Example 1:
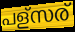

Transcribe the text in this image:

പള്സര്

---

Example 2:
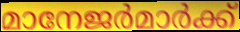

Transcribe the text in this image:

മാനേജർമാർക്ക്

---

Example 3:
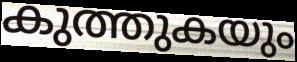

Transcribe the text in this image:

കുത്തുകയും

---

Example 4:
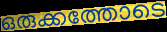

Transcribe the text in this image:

ഒരുക്കത്തോടെ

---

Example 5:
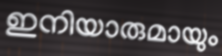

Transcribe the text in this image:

ഇനിയാരുമായും